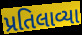
પ્રતિલાવ્યા